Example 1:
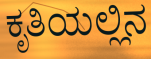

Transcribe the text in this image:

ಕೃತಿಯಲ್ಲಿನ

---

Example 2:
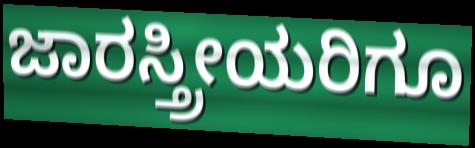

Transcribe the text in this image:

ಜಾರಸ್ತ್ರೀಯರಿಗೂ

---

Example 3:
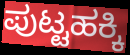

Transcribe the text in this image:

ಪುಟ್ಟಹಕ್ಕಿ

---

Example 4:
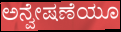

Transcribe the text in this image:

ಅನ್ವೇಷಣೆಯೂ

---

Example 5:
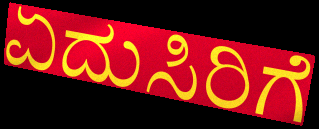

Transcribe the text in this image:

ಏದುಸಿರಿಗೆ